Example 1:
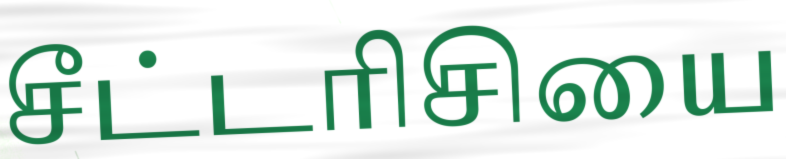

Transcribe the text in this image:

சீட்டரிசியை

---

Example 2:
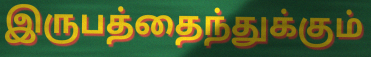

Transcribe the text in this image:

இருபத்தைந்துக்கும்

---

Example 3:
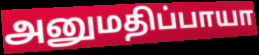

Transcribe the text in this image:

அனுமதிப்பாயா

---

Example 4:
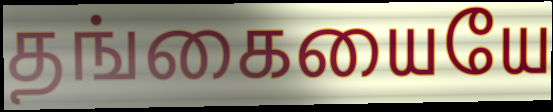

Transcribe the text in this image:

தங்கையையே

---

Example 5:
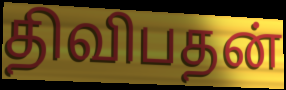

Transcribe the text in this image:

திவிபதன்